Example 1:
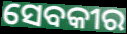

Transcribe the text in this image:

ସେବକୀର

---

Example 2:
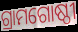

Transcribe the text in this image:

ଗ୍ରାମଗୋଷ୍ଠୀ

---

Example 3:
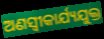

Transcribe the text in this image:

ଅଣସ୍ବୀକାର୍ଯ୍ୟଯୁକ୍ତ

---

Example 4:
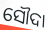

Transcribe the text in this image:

ସୌଦା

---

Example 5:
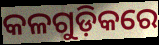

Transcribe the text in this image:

କଳଗୁଡ଼ିକରେ